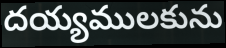
దయ్యములకును